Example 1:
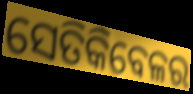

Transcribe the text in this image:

ସେତିକିବେଳର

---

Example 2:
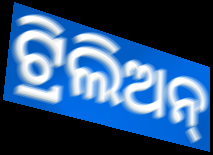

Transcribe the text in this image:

ଟ୍ରିଲିଅନ୍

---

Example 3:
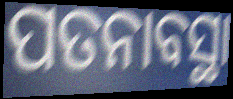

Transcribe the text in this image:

ପତନାବସ୍ଥା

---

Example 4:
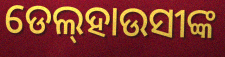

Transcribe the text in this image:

ଡେଲ୍‌ହାଉସୀଙ୍କ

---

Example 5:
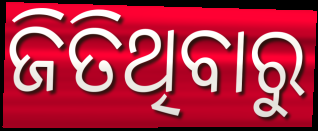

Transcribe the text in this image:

ଜିତିଥିବାରୁ